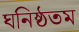
ঘনিষ্ঠতম